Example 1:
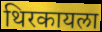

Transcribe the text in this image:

थिरकायला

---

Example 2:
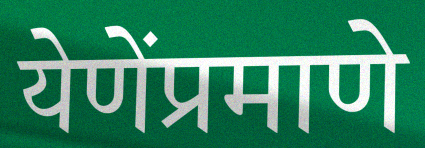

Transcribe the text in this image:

येणेंप्रमाणे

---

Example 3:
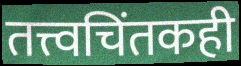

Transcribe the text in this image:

तत्त्वचिंतकही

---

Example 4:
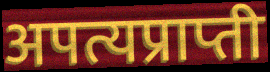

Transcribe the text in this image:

अपत्यप्राप्ती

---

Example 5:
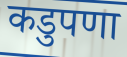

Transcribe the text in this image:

कडुपणा